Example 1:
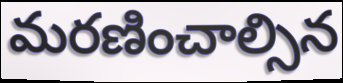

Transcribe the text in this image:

మరణించాల్సిన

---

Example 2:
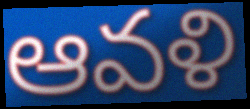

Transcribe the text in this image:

ఆవళి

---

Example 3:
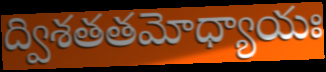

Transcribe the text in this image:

ద్విశతతమోధ్యాయః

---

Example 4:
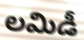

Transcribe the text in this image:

లమిడీ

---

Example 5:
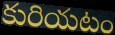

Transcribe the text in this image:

కురియటం